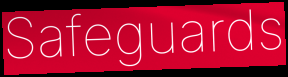
Safeguards